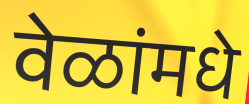
वेळांमधे